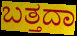
ಬತ್ತದಾ